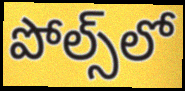
పోల్స్‌లో